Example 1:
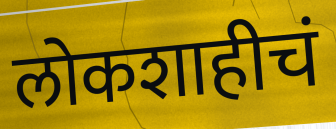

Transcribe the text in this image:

लोकशाहीचं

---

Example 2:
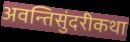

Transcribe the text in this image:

अवन्तिसुंदरीकथा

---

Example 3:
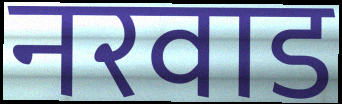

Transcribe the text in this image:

नरवाड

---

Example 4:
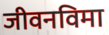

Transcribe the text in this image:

जीवनविमा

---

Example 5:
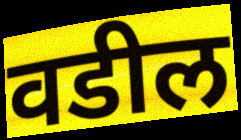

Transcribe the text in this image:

वडील